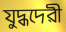
যুদ্ধদেৱী